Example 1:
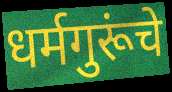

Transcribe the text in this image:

धर्मगुरूंचे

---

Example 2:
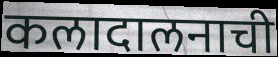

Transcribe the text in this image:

कलादालनाची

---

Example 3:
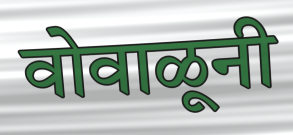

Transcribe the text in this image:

वोवाळूनी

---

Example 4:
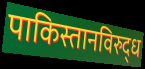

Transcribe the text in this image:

पाकिस्तानविरुद्ध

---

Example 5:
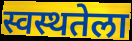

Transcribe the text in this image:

स्वस्थतेला